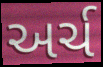
અર્ચ